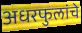
अधरफुलांचे